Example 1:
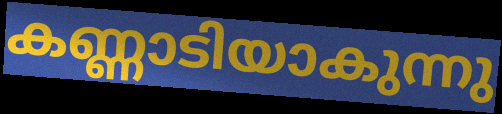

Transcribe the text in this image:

കണ്ണാടിയാകുന്നു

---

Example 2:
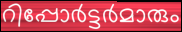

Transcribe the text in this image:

റിപ്പോർട്ടർമാരും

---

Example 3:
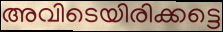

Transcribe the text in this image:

അവിടെയിരിക്കട്ടെ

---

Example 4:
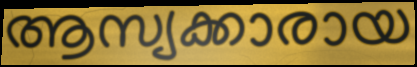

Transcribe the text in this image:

ആസ്യക്കാരായ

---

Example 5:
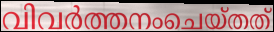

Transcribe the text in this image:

വിവർത്തനംചെയ്തത്